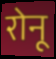
रोनू